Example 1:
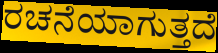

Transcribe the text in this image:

ರಚನೆಯಾಗುತ್ತದೆ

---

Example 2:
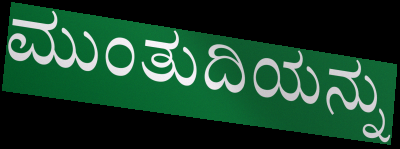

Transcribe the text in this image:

ಮುಂತುದಿಯನ್ನು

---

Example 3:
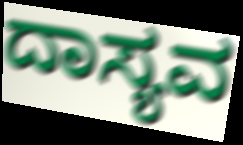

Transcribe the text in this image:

ದಾಸ್ಯವ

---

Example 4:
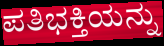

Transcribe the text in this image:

ಪತಿಭಕ್ತಿಯನ್ನು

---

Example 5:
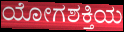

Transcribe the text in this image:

ಯೋಗಶಕ್ತಿಯ